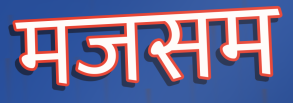
मजसम